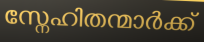
സ്നേഹിതന്മാർക്ക്